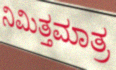
ನಿಮಿತ್ತಮಾತ್ರ